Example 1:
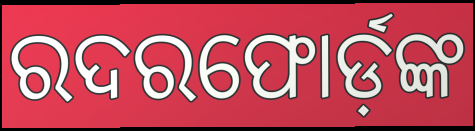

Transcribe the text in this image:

ରଦରଫୋର୍ଡ଼ଙ୍କ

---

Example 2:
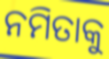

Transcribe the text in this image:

ନମିତାକୁ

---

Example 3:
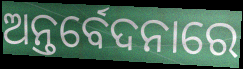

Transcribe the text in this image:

ଅନ୍ତର୍ବେଦନାରେ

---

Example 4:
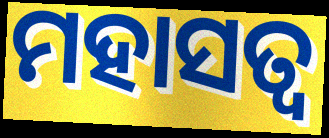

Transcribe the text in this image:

ମହାସତ୍ୱ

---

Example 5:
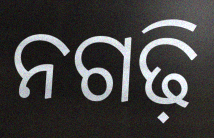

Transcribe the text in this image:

ନଗଢ଼ି